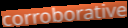
corroborative